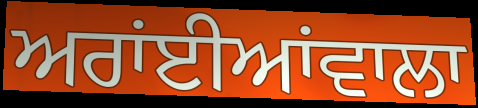
ਅਰਾਂਈਆਂਵਾਲਾ